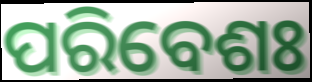
ପରିବେଶଃ